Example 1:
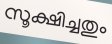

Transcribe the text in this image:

സൂക്ഷിച്ചതും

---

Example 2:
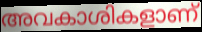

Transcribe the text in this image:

അവകാശികളാണ്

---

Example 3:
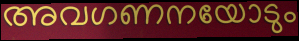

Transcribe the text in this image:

അവഗണനയോടും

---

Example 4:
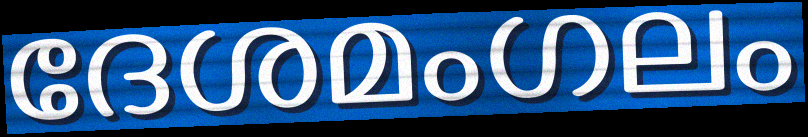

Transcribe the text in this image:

ദേശമംഗലം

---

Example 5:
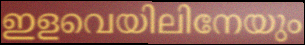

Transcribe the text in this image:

ഇളവെയിലിനേയും